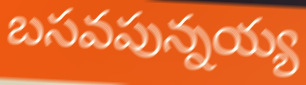
బసవపున్నయ్య